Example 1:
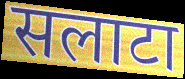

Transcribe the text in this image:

सलाटा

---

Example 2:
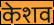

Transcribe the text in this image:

केशव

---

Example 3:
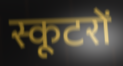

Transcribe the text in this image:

स्कूटरों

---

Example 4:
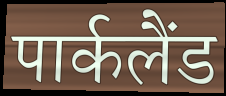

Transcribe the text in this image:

पार्कलैंड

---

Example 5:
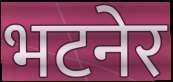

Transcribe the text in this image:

भटनेर